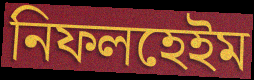
নিফলহেইম